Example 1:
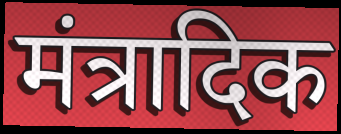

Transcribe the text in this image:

मंत्रादिक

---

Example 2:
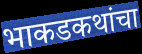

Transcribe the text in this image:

भाकडकथांचा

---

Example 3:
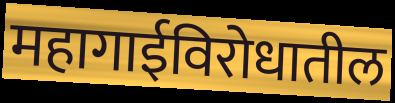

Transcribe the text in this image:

महागाईविरोधातील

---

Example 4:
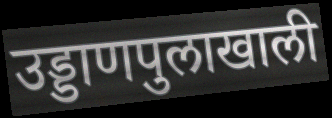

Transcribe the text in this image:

उड्डाणपुलाखाली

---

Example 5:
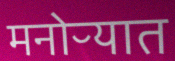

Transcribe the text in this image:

मनोऱ्यात